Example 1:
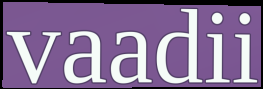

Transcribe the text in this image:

vaadii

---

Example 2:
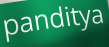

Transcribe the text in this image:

panditya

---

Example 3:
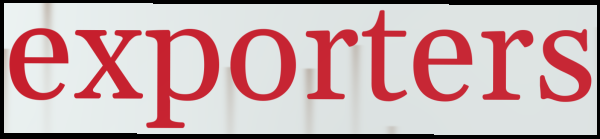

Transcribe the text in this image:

exporters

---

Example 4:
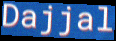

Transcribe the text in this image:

Dajjal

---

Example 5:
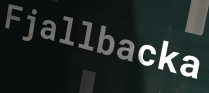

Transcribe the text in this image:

Fjallbacka